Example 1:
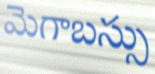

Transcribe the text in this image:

మెగాబస్సు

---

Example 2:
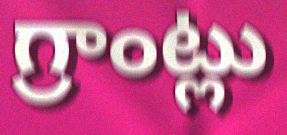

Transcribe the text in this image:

గ్రాంట్లు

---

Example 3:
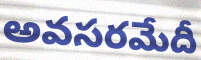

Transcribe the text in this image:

అవసరమేదీ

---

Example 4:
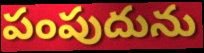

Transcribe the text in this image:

పంపుదును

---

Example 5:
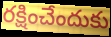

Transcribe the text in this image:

రక్షించేందుకు